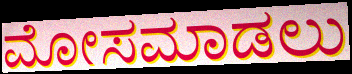
ಮೋಸಮಾಡಲು